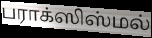
பராக்ஸிஸ்மல்